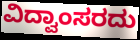
ವಿದ್ವಾಂಸರದು